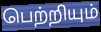
பெற்றியும்